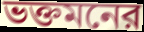
ভক্তমনের